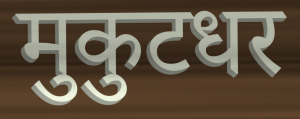
मुकुटधर